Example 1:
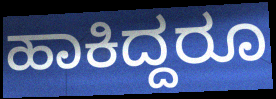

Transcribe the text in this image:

ಹಾಕಿದ್ದರೂ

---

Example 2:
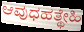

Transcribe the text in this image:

ಆವುಧಹತ್ಥೇಹಿ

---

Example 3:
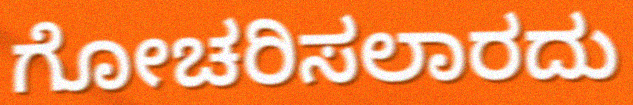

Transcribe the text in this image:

ಗೋಚರಿಸಲಾರದು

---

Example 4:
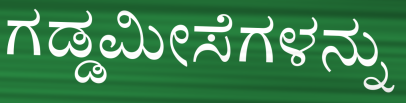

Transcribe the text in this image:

ಗಡ್ಡಮೀಸೆಗಳನ್ನು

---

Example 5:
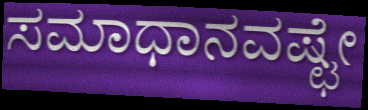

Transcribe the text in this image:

ಸಮಾಧಾನವಷ್ಟೇ